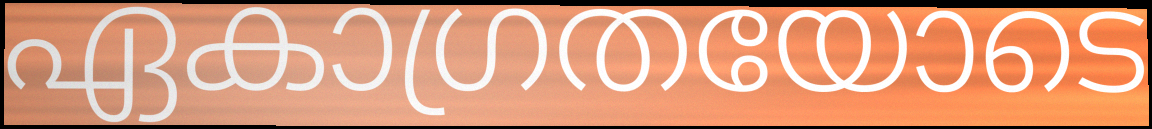
ഏകാഗ്രതയോടെ